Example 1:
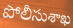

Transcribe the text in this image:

పోలీసుశాఖ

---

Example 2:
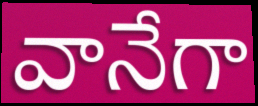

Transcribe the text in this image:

వానేగా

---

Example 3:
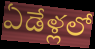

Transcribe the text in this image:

ఏడేళ్లలో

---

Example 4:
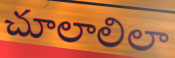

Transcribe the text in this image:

చూలాలిలా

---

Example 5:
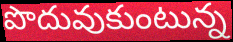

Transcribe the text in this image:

పొదువుకుంటున్న